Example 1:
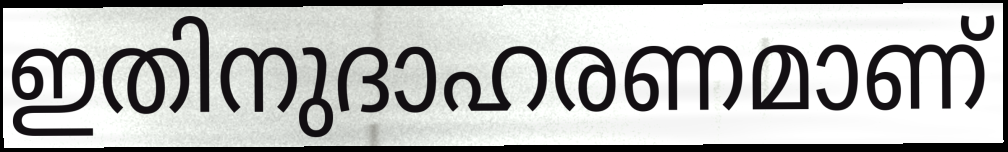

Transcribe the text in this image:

ഇതിനുദാഹരണമാണ്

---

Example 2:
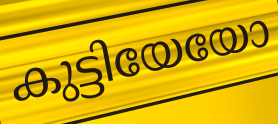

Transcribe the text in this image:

കുട്ടിയേയോ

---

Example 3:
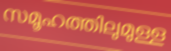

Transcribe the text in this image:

സമൂഹത്തിലുമുള്ള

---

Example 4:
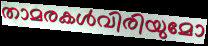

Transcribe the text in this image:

താമരകൾവിരിയുമോ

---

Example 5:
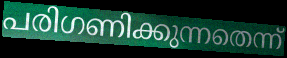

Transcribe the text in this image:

പരിഗണിക്കുന്നതെന്ന്